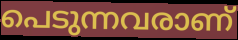
പെടുന്നവരാണ്